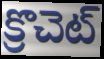
క్రొచెట్